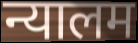
न्यालम